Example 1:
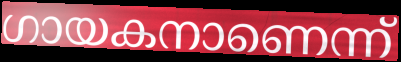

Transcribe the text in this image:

ഗായകനാണെന്ന്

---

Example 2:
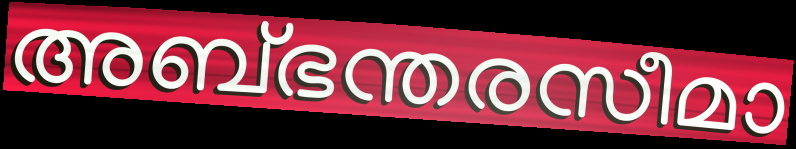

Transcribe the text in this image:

അബ്ഭന്തരസീമാ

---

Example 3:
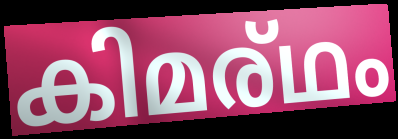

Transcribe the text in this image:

കിമര്ഥം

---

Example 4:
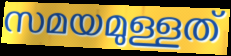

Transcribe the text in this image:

സമയമുള്ളത്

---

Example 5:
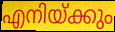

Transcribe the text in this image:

എനിയ്ക്കും